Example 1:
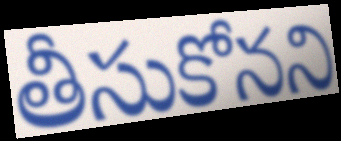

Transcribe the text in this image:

తీసుకోనని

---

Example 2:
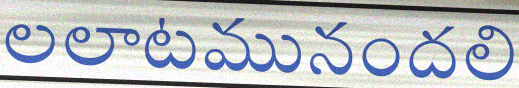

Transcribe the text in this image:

లలాటమునందలి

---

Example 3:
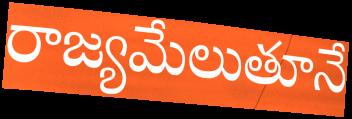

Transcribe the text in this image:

రాజ్యమేలుతూనే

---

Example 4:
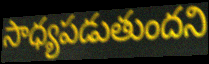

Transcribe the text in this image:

సాధ్యపడుతుందని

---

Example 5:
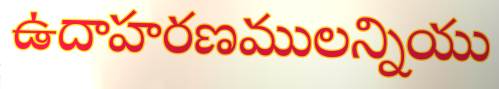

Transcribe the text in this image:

ఉదాహరణములన్నియు